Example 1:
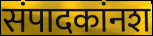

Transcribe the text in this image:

संपादकांनश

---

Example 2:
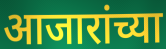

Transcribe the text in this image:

आजारांच्या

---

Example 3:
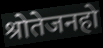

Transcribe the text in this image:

श्रोतेजनहो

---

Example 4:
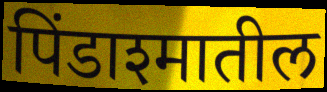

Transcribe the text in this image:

पिंडाश्मातील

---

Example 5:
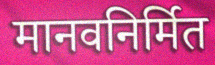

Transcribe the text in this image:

मानवनिर्मित